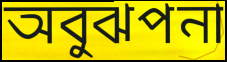
অবুঝপনা